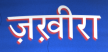
ज़ख़ीरा